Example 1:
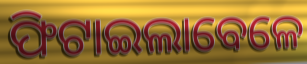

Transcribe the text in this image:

ଫିଟାଇଲାବେଳେ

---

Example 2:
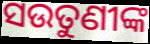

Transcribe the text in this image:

ସଉତୁଣୀଙ୍କ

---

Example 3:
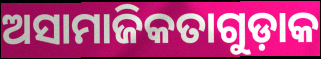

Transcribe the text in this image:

ଅସାମାଜିକତାଗୁଡ଼ାକ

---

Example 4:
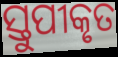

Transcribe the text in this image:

ସ୍ତୁପୀକୃତ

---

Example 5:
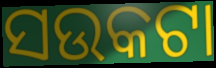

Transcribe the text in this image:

ସଉକଟା